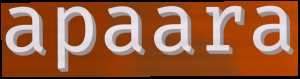
apaara